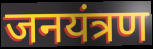
जनयंत्रण